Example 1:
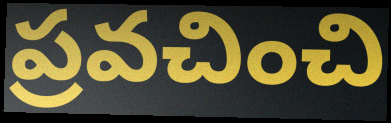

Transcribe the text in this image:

ప్రవచించి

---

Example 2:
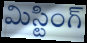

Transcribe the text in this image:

మిస్టింగ్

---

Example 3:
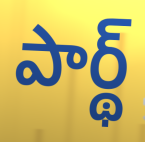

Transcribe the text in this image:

పార్థ్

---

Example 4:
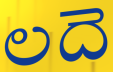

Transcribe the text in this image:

లదె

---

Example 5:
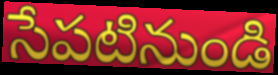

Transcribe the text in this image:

సేపటినుండి